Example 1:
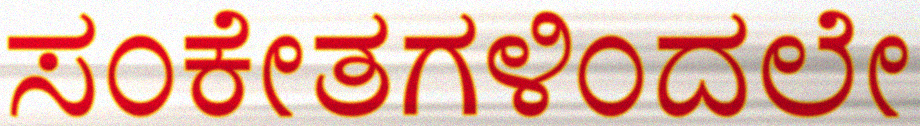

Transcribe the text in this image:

ಸಂಕೇತಗಳಿಂದಲೇ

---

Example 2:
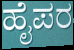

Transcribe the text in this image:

ಹೈಪರ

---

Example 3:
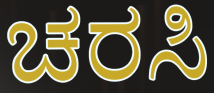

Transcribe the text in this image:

ಚರಸಿ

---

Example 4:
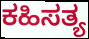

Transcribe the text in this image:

ಕಹಿಸತ್ಯ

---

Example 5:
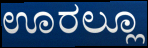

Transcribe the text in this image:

ಊರಲ್ಲೂ